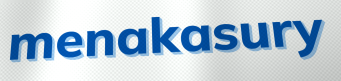
menakasury